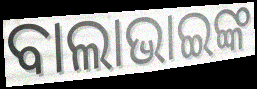
ବାଲାଭାଇଙ୍କ